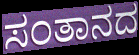
ಸಂತಾನದ